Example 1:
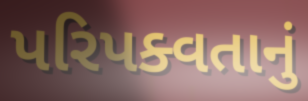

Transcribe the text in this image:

પરિપક્વતાનું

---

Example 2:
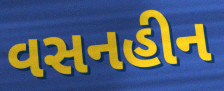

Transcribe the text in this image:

વસનહીન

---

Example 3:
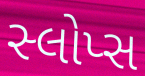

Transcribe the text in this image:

સ્લોપ્સ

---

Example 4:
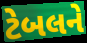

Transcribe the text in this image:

ટેબલને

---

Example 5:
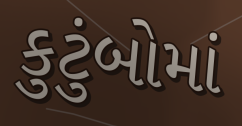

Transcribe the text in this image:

કુટુંબોમાં